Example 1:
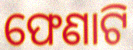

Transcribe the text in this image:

ଫେଣାଟି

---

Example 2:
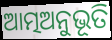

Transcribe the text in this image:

ଆତ୍ମଅନୁଭୂତି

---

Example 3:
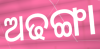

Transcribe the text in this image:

ଅଢଙ୍ଗା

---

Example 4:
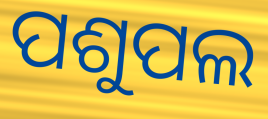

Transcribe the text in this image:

ପଶୁପଲ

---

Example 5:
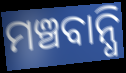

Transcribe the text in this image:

ମଞ୍ଚବାନ୍ଧି